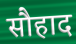
सौहाद